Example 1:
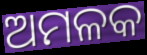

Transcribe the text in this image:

ଅମଳକ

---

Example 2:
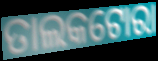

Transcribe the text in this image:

ତାଲକଟୋରା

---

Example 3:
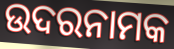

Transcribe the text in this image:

ଉଦରନାମକ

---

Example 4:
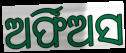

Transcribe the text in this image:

ଅର୍ଫିଅସ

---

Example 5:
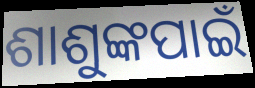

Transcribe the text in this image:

ଶାଶୁଙ୍କପାଇଁ